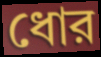
ধোর